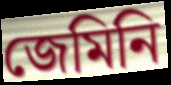
জেমিনি